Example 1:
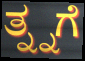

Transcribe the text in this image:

ತ್ನ್ನಗೆ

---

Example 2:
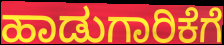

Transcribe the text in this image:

ಹಾಡುಗಾರಿಕೆಗೆ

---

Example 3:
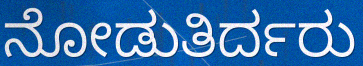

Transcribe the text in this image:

ನೋಡುತಿರ್ದರು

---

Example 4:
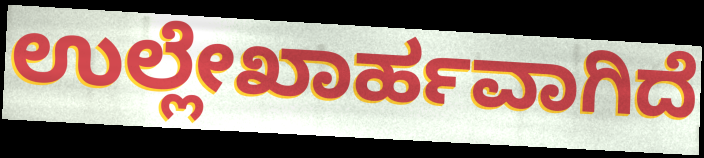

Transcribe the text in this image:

ಉಲ್ಲೇಖಾರ್ಹವಾಗಿದೆ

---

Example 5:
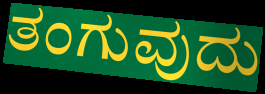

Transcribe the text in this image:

ತಂಗುವುದು